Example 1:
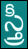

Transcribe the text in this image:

స్త్రీ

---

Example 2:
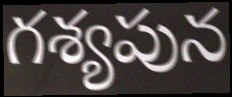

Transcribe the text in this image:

గశ్యపున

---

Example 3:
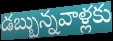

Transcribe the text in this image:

డబ్బున్నవాళ్లకు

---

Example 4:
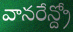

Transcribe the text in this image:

వానరేన్ద్రో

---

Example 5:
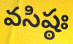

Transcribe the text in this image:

వసిష్ఠః